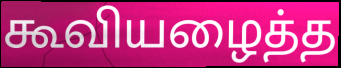
கூவியழைத்த